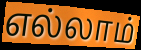
எல்லாம்